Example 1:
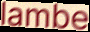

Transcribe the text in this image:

lambe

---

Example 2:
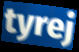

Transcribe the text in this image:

tyrej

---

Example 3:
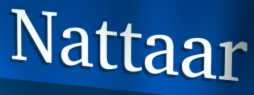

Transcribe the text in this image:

Nattaar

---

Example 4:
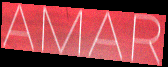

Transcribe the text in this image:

AMAR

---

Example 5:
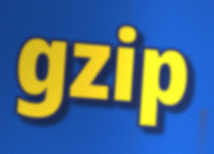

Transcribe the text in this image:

gzip